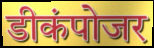
डीकंपोजर